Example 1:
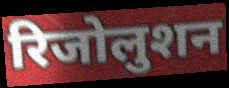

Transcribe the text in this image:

रिजोलुशन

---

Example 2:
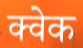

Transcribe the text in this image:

क्वेक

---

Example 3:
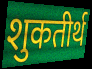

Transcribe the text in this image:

शुकतीर्थ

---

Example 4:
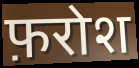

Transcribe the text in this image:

फ़रोश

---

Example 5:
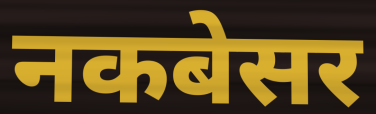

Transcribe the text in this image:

नकबेसर